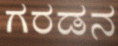
ಗರಡನ